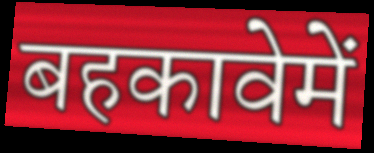
बहकावेमें